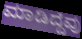
ಮಾಡಿದ್ದೆವು